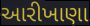
આરીખાણા